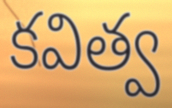
కవిత్వ